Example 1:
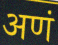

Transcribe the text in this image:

अणं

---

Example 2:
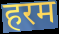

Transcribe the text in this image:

हरम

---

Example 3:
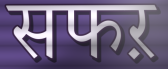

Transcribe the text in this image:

सफऱ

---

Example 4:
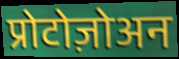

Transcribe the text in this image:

प्रोटोज़ोअन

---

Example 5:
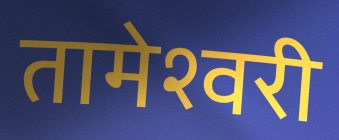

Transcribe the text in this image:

तामेश्वरी